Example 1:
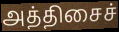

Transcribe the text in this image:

அத்திசைச்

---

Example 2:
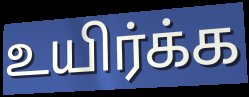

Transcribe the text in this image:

உயிர்க்க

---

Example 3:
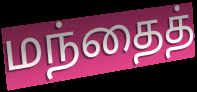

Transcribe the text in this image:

மந்தைத்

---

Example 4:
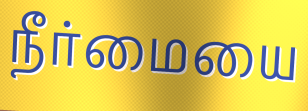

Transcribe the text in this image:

நீர்மையை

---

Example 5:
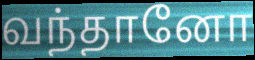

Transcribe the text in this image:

வந்தானோ